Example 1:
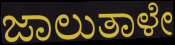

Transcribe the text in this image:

ಜಾಲುತಾಳೇ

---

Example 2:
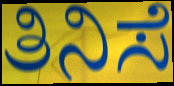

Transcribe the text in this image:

ತಿನಿಸೆ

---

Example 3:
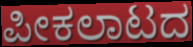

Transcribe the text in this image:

ಪೀಕಲಾಟದ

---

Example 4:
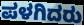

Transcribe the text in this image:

ಪಳಗಿದರು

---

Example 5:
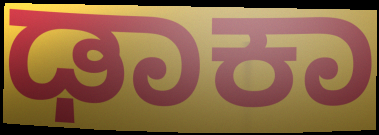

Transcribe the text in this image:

ಢಾಕಾ